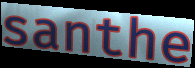
santhe